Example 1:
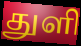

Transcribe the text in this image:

துளி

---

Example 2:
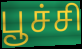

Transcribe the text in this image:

பூச்சி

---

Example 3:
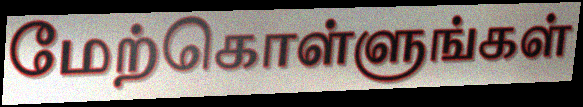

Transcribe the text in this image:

மேற்கொள்ளுங்கள்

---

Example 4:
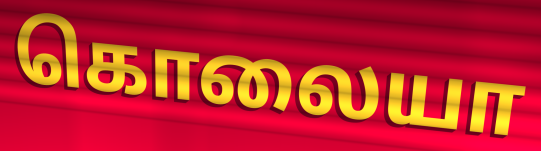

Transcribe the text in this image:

கொலையா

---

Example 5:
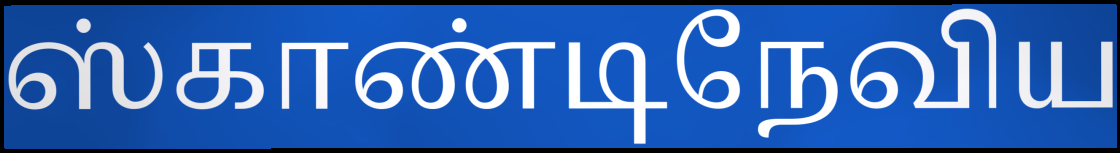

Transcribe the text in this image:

ஸ்காண்டிநேவிய